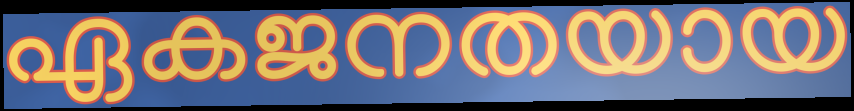
ഏകജനതയായ